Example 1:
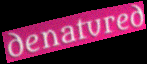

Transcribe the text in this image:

denatured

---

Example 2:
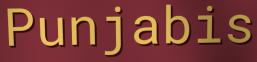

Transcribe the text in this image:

Punjabis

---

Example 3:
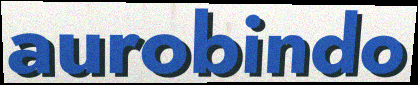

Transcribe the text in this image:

aurobindo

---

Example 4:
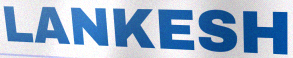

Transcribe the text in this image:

LANKESH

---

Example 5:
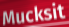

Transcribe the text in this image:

Mucksit